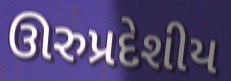
ઊરુપ્રદેશીય